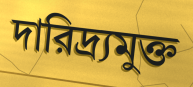
দারিদ্র্যমুক্ত